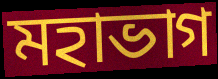
মহাভাগ